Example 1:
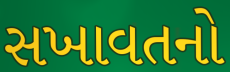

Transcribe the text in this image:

સખાવતનો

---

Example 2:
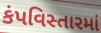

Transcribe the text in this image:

કંપવિસ્તારમાં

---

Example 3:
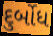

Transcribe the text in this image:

દુર્બોધ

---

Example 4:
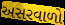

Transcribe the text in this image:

અસરવાળો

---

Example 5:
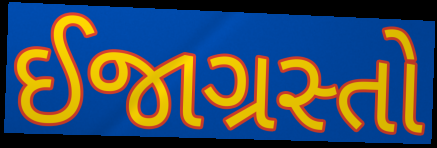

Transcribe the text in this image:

ઈજાગ્રસ્તો